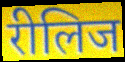
रीलिज